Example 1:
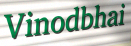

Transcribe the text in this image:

Vinodbhai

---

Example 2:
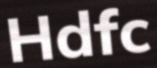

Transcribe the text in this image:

Hdfc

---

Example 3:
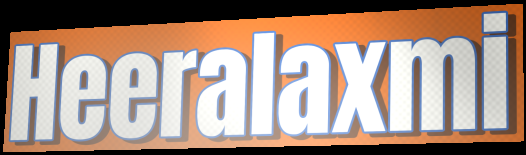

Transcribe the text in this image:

Heeralaxmi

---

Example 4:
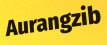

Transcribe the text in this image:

Aurangzib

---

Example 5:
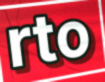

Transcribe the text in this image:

rto